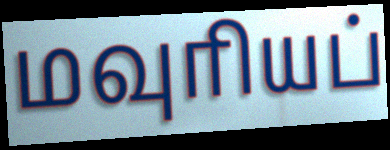
மவுரியப்